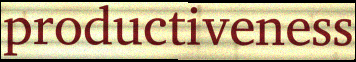
productiveness